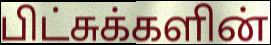
பிட்சுக்களின்